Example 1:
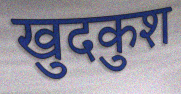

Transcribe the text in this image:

खुदकुश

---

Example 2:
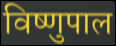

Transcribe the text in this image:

विष्णुपाल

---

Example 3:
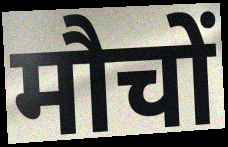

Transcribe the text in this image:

मौचों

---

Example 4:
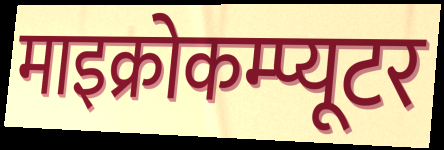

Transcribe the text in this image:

माइक्रोकम्प्यूटर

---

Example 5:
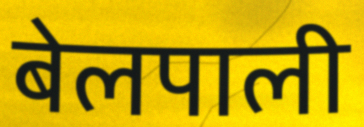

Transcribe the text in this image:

बेलपाली